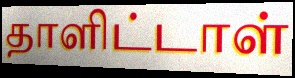
தாளிட்டாள்